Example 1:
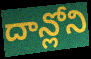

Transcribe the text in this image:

దాన్లోని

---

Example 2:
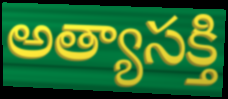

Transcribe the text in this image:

అత్యాసక్తి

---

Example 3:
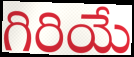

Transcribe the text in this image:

గిరియే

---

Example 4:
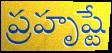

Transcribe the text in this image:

ప్రహృష్టే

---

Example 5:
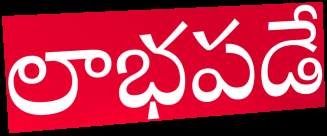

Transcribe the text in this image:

లాభపడే